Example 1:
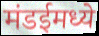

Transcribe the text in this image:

मंडईमध्ये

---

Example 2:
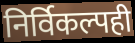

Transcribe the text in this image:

निर्विकल्पही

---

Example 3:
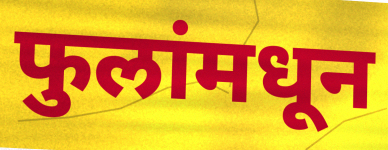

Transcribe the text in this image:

फुलांमधून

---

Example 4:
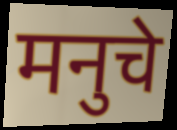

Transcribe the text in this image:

मनुचे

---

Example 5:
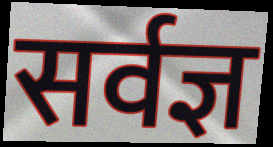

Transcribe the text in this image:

सर्वज्ञ